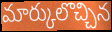
మార్కులొచ్చిన